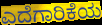
ಎದೆಗಾರಿಕೆಯ